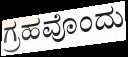
ಗ್ರಹವೊಂದು